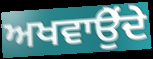
ਅਖਵਾਉੇਂਦੇ